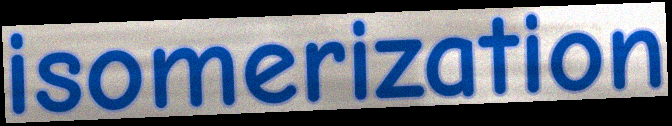
isomerization